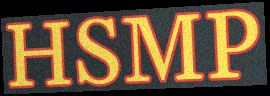
HSMP